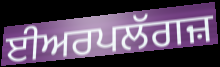
ਈਅਰਪਲੱਗਜ਼